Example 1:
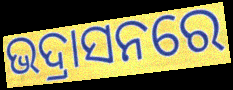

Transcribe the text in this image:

ଭଦ୍ରାସନରେ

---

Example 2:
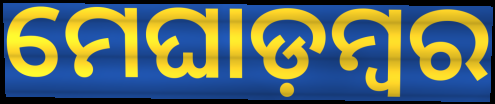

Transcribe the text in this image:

ମେଘାଡ଼ମ୍ବର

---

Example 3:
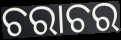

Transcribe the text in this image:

ଚରାଚର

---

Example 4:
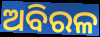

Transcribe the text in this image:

ଅବିରଳ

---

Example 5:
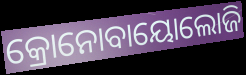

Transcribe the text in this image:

କ୍ରୋନୋବାୟୋଲୋଜି